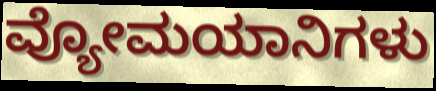
ವ್ಯೋಮಯಾನಿಗಳು